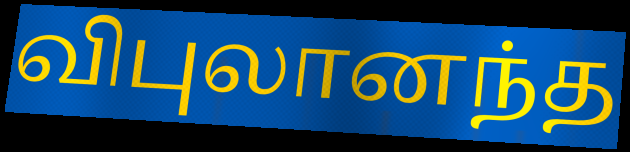
விபுலானந்த